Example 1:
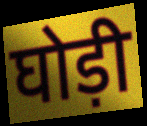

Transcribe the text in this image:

घोड़ी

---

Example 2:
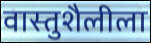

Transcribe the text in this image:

वास्तुशैलीला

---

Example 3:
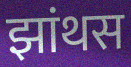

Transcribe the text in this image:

झांथस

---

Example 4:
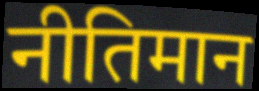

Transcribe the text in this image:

नीतिमान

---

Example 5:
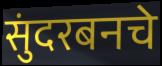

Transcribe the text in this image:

सुंदरबनचे